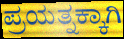
ಪ್ರಯತ್ನಕ್ಕಾಗಿ